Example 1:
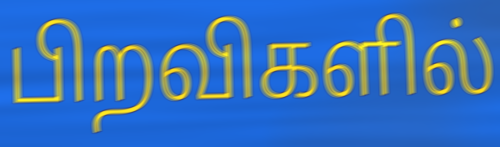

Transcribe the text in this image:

பிறவிகளில்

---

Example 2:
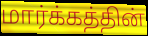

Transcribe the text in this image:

மார்க்கத்தின்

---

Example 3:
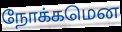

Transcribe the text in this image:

நோக்கமென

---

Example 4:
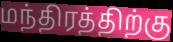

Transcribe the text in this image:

மந்திரத்திற்கு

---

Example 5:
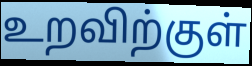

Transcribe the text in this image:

உறவிற்குள்